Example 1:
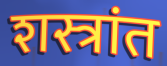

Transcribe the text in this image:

शस्त्रांत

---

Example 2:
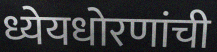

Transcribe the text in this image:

ध्येयधोरणांची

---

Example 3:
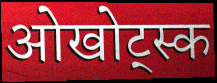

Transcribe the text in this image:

ओखोट्स्क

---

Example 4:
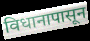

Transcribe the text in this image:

विधानापासून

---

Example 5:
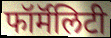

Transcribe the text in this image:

फॉर्मॅलिटी